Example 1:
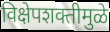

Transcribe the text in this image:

विक्षेपशक्तीमुळे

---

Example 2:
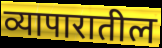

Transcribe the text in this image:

व्यापारातील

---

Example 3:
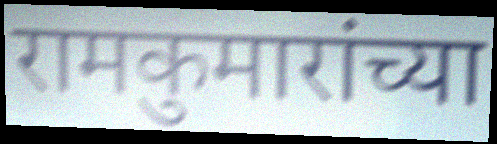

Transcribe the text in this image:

रामकुमारांच्या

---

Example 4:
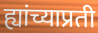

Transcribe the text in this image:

ह्यांच्याप्रती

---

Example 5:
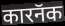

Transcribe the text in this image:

कारनॅक